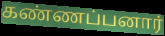
கண்ணப்பனார்